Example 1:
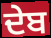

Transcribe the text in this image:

ਦੇਬ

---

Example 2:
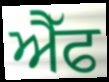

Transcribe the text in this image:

ਐੈੱਫ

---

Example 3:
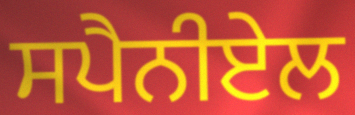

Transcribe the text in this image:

ਸਪੈਨੀਏਲ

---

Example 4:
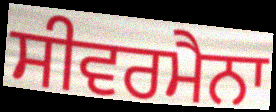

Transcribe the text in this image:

ਸੀਵਰਮੈਨਾ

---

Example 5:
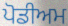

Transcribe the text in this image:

ਪੋਡੀਅਮ